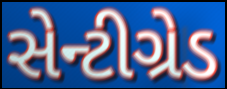
સેન્ટીગ્રેડ